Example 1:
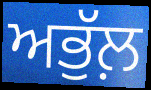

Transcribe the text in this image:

ਅਭੁੱਲ਼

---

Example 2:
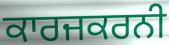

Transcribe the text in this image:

ਕਾਰਜਕਰਨੀ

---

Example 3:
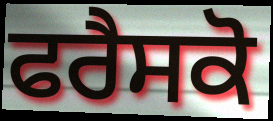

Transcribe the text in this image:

ਫਰੈਸਕੋ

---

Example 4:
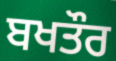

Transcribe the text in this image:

ਬਖਤੌਰ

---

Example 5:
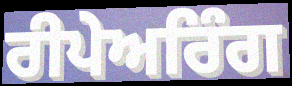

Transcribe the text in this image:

ਰੀਪੇਅਰਿੰਗ